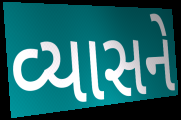
વ્યાસને